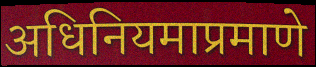
अधिनियमाप्रमाणे